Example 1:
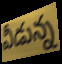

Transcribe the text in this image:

వీడున్న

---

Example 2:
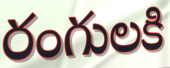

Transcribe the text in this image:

రంగులకి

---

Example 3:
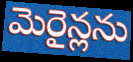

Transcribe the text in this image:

మెరైన్లను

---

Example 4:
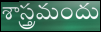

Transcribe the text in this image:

శాస్త్రమందు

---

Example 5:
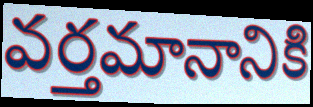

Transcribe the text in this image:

వర్తమానానికి